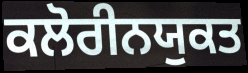
ਕਲੋਰੀਨਯੁਕਤ